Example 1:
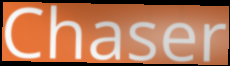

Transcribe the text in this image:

Chaser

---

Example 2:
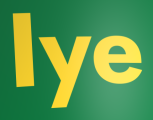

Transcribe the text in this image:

Iye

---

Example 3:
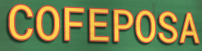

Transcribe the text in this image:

COFEPOSA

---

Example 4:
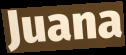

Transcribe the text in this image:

Juana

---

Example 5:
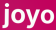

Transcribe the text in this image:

joyo